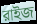
রাইজ